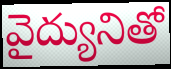
వైద్యునితో